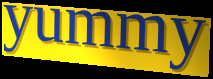
yummy